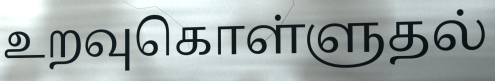
உறவுகொள்ளுதல்